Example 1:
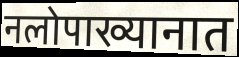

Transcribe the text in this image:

नलोपाख्यानात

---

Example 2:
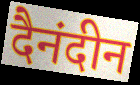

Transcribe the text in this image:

दैनंदीन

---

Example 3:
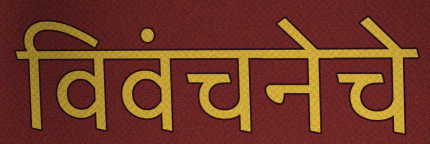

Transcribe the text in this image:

विवंचनेचे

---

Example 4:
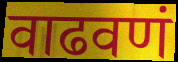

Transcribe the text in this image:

वाढवणं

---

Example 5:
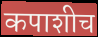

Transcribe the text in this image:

कपाशीच